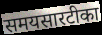
समयसारटीका